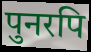
पुनरपि